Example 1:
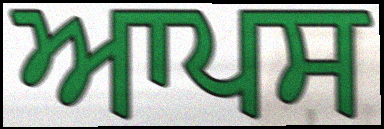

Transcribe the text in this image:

ਆਪਸ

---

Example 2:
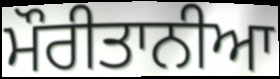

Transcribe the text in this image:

ਮੌਰੀਤਾਨੀਆ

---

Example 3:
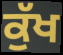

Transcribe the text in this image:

ਕੁੱਖ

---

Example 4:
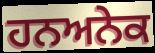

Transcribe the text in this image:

ਹਨਅਨੇਕ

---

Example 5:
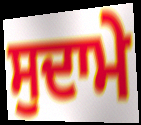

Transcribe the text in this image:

ਸੁਦਾਮੇ